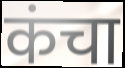
कंचा